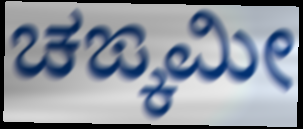
ಚಙ್ಕಮೀ